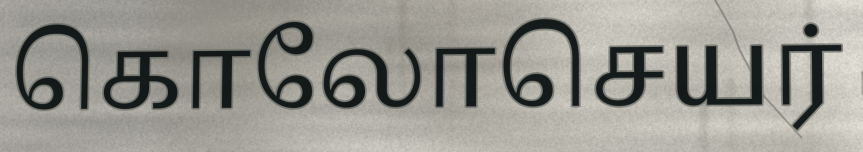
கொலோசெயர்